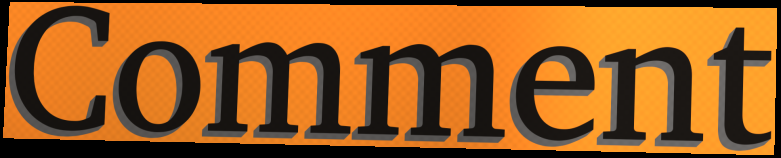
Comment